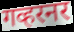
गव्हरनर